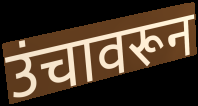
उंचावरून